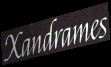
Xandrames